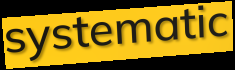
systematic